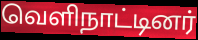
வெளிநாட்டினர்